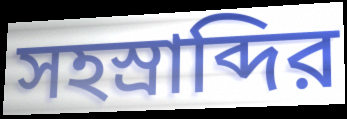
সহস্রাব্দির